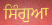
ਸਿੰਗੁਆ